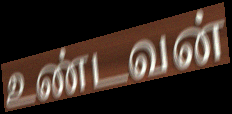
உண்டவன்